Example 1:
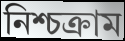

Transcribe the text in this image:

নিশ্চক্রাম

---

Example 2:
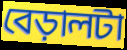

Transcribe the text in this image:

বেড়ালটা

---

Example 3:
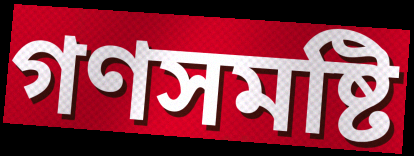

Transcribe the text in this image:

গণসমষ্টি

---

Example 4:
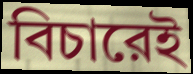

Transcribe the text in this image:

বিচারেই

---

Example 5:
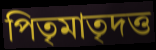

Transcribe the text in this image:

পিতৃমাতৃদত্ত